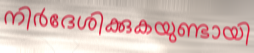
നിർദേശിക്കുകയുണ്ടായി